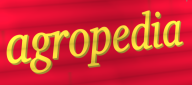
agropedia